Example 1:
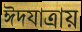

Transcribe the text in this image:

ঈদযাত্রায়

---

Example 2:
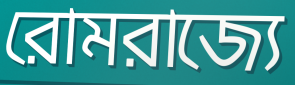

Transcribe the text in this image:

রোমরাজ্যে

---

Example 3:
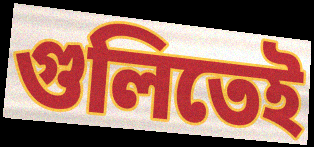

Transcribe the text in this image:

গুলিতেই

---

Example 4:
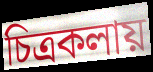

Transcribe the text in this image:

চিত্রকলায়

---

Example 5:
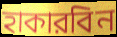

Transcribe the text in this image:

হাকারবিন